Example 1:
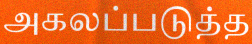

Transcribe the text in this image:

அகலப்படுத்த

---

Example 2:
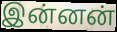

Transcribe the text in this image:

இன்னன்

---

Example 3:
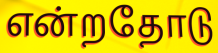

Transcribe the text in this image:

என்றதோடு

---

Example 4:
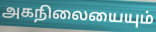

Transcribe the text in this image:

அகநிலையையும்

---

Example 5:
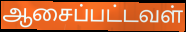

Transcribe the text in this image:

ஆசைப்பட்டவள்